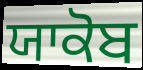
ਯਾਕੋਬ